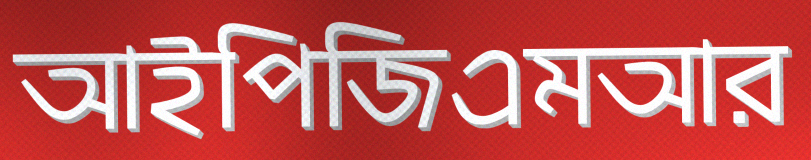
আইপিজিএমআর